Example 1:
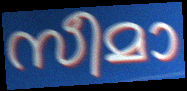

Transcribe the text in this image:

സീമാ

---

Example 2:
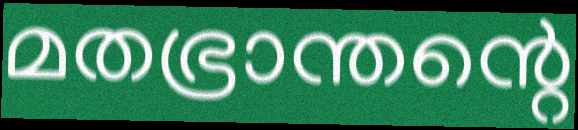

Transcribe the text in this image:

മതഭ്രാന്തന്റെ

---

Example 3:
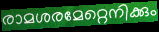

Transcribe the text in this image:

രാമശരമേറ്റെനിക്കും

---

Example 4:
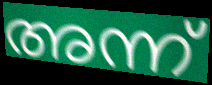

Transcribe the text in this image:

അന്ന്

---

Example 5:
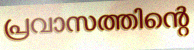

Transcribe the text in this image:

പ്രവാസത്തിന്റെ